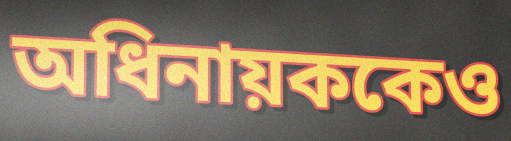
অধিনায়ককেও